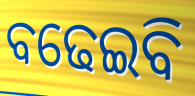
ବଢେଇବି